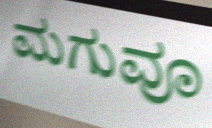
ಮಗುವೂ